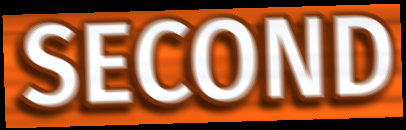
SECOND